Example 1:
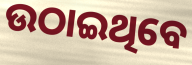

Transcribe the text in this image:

ଉଠାଇଥିବେ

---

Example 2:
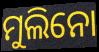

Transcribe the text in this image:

ମୁଲିନୋ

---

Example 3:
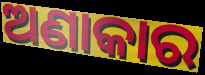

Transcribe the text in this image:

ଅଣାକାର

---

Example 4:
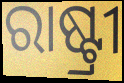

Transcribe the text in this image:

ରାଷ୍ଟ୍ରୀ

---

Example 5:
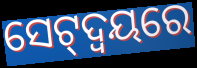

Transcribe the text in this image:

ସେଟ୍‌ଦ୍ଵୟରେ